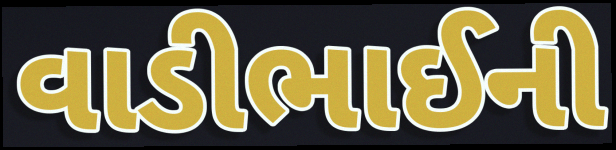
વાડીભાઈની